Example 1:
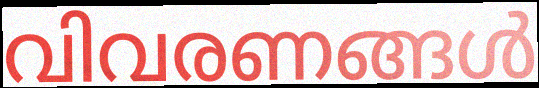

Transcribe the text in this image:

വിവരണങ്ങൾ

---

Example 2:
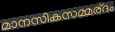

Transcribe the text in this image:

മാനസികസമ്മര്ദം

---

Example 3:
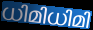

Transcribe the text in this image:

ധിമിധിമി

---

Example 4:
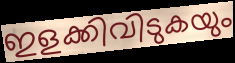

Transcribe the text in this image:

ഇളക്കിവിടുകയും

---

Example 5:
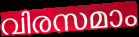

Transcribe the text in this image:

വിരസമാം